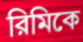
রিমিকে